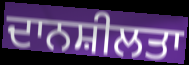
ਦਾਨਸ਼ੀਲਤਾ